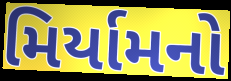
મિર્યામનો